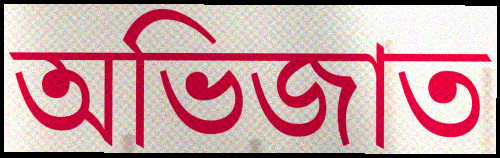
অভিজাত